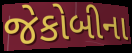
જેકોબીના